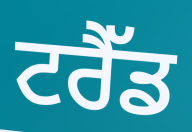
ਟਰੈੱਡ